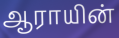
ஆராயின்